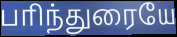
பரிந்துரையே